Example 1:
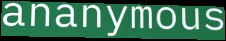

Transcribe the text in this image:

ananymous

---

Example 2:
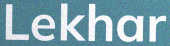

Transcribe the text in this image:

Lekhar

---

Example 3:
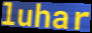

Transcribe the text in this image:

luhar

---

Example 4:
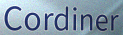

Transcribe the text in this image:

Cordiner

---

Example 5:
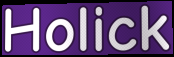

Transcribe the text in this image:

Holick